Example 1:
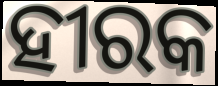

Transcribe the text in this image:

ହୀରକ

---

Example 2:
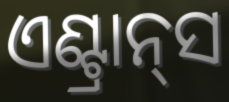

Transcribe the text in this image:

ଏଣ୍ଟ୍ରାନ୍‍ସ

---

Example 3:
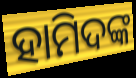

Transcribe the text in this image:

ହାମିଦଙ୍କ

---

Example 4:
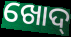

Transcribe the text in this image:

ଖୋଦ୍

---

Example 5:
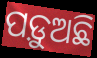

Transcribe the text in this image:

ପଡ଼ୁଅଛି